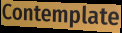
Contemplate